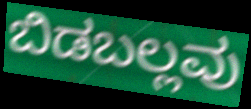
ಬಿಡಬಲ್ಲವು